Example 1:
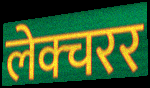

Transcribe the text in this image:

लेक्‍चरर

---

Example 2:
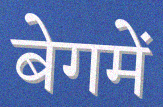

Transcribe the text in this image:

बेगमें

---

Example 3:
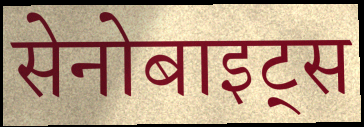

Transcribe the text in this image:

सेनोबाइट्स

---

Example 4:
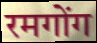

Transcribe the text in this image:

रमगोंग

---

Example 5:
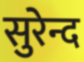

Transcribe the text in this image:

सुरेन्द